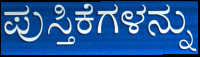
ಪುಸ್ತಿಕೆಗಳನ್ನು